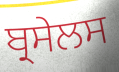
ਬ੍ਰਸੇਲਸ